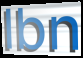
lbn